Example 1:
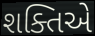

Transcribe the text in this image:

શક્તિએ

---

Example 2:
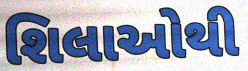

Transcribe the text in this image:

શિલાઓથી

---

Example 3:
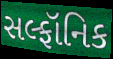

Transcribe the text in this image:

સલ્ફૉનિક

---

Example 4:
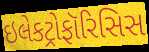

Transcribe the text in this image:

ઇલેકટ્રોફૉરિસિસ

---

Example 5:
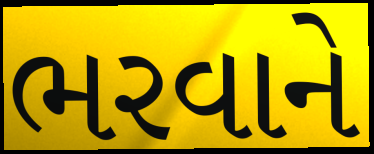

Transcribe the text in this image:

ભરવાને